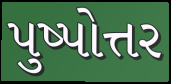
પુષ્પોત્તર